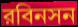
রবিনসন